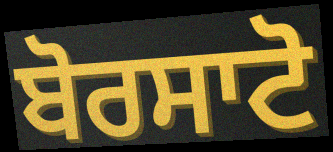
ਬੋਰਸਾਟੋ